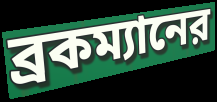
ব্রকম্যানের